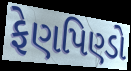
ફેણપિણ્ડો